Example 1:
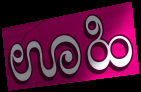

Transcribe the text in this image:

ಊಹಿ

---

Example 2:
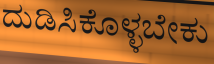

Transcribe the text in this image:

ದುಡಿಸಿಕೊಳ್ಳಬೇಕು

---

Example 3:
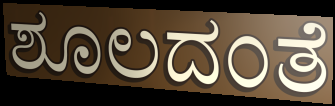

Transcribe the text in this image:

ಶೂಲದಂತೆ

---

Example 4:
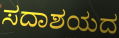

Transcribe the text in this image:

ಸದಾಶಯದ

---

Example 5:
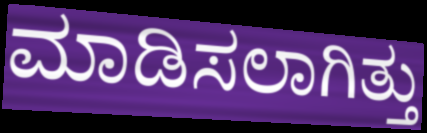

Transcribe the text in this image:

ಮಾಡಿಸಲಾಗಿತ್ತು